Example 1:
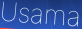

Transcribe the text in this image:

Usama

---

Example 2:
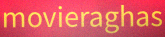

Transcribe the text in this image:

movieraghas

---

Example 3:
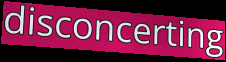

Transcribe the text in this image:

disconcerting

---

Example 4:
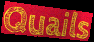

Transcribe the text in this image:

Quails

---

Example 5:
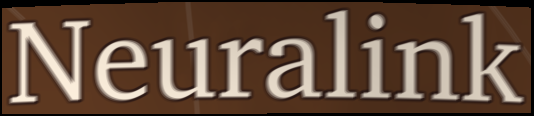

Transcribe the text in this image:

Neuralink